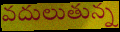
వదులుతున్న